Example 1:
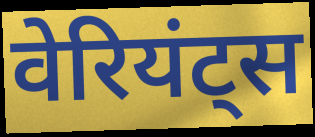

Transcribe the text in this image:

वेरियंट्स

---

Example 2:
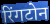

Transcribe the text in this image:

रिंगटोन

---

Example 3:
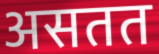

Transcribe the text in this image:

असतत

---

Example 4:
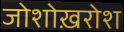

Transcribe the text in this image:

जोशोख़रोश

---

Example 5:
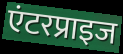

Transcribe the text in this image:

एंटरप्राइज